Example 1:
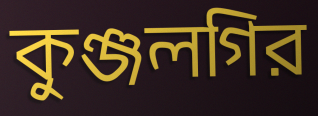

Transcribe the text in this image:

কুঞ্জলগির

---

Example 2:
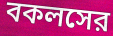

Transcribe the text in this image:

বকলসের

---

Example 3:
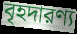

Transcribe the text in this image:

বৃহদারণ্য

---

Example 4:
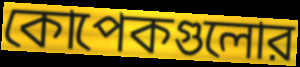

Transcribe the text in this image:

কোপেকগুলোর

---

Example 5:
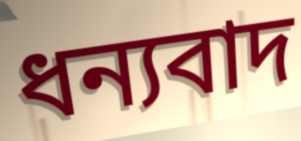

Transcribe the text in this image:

ধন্যবাদ